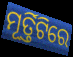
ମୂର୍ତ୍ତିଟିରେ